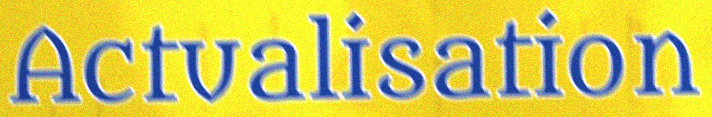
Actualisation